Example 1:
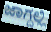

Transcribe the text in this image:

ಜಾಗ್ದಲ್ಲಿ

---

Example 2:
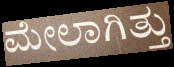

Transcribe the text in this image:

ಮೇಲಾಗಿತ್ತು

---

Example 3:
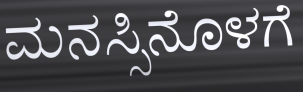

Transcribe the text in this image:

ಮನಸ್ಸಿನೊಳಗೆ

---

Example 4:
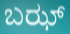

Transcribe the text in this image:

ಬಝ್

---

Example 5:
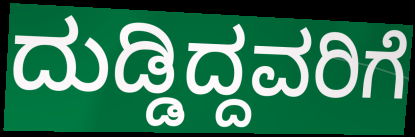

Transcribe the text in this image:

ದುಡ್ಡಿದ್ದವರಿಗೆ